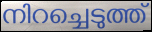
നിറച്ചെടുത്ത്